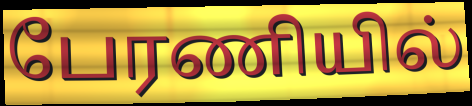
பேரணியில்